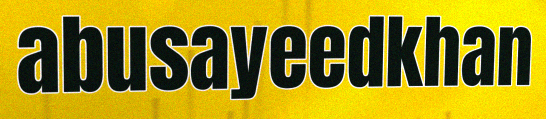
abusayeedkhan